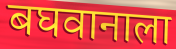
बघवानाला